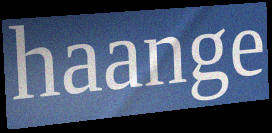
haange